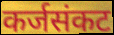
कर्जसंकट